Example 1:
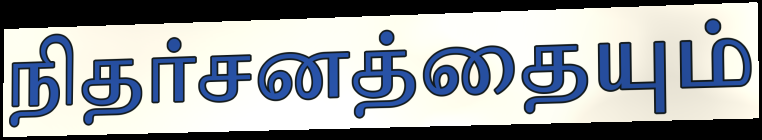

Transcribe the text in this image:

நிதர்சனத்தையும்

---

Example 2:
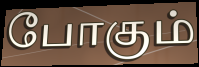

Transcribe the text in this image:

போகும்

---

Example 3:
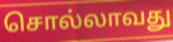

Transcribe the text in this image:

சொல்லாவது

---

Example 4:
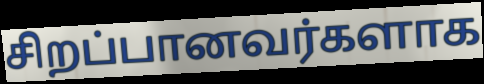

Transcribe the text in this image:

சிறப்பானவர்களாக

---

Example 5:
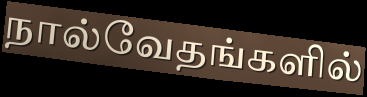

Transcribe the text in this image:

நால்வேதங்களில்